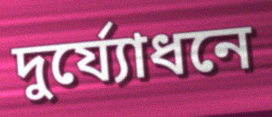
দুর্য্যোধনে